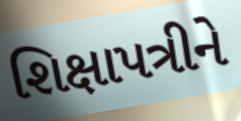
શિક્ષાપત્રીને